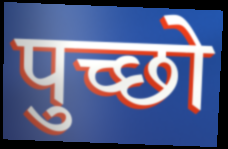
पुच्छो